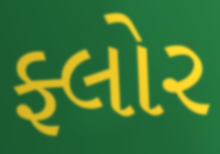
ફ્લોર